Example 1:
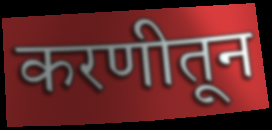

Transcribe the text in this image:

करणीतून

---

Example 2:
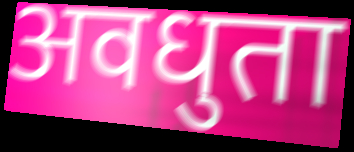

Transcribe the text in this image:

अवधुता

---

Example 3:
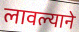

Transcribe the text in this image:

लावल्याने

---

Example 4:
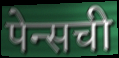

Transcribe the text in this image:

पेन्सची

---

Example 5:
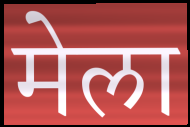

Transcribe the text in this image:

मेला